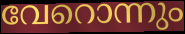
വേറൊന്നും